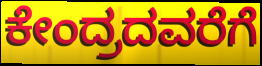
ಕೇಂದ್ರದವರೆಗೆ